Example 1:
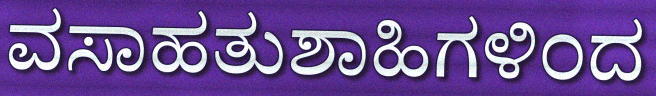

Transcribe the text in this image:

ವಸಾಹತುಶಾಹಿಗಳಿಂದ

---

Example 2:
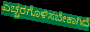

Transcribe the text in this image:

ಎಚ್ಚರಗೊಳಿಸಬೇಕಾಗಿದೆ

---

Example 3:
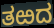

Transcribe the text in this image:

ತಱದ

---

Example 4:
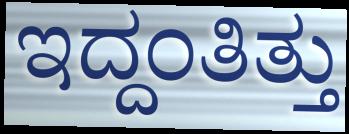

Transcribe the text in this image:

ಇದ್ದಂತಿತ್ತು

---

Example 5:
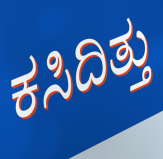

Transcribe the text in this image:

ಕಸಿದಿತ್ತು